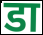
डा